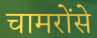
चामरोंसे